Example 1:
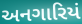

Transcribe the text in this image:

અનગારિયં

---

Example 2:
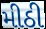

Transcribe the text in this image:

મીઠી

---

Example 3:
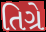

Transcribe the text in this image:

તિગ્રે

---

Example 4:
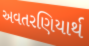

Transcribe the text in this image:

અવતરણિયાર્થ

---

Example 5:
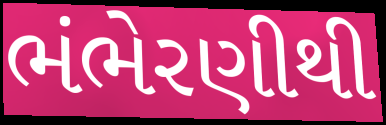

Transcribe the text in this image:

ભંભેરણીથી